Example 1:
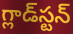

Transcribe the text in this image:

గ్లాడ్‌స్టన్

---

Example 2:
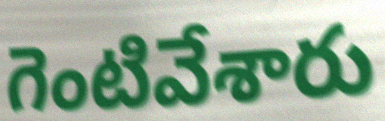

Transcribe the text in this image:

గెంటివేశారు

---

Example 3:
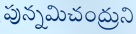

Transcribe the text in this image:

పున్నమిచంద్రుని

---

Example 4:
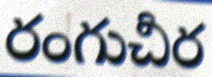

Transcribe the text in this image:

రంగుచీర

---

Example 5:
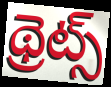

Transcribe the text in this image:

థ్రెట్స్